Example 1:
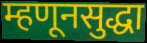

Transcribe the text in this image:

म्हणूनसुद्धा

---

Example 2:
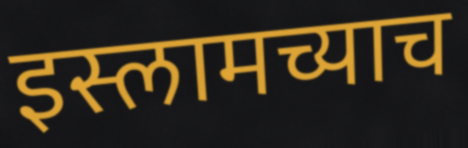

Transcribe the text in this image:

इस्लामच्याच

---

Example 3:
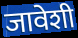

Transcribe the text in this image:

जावेशी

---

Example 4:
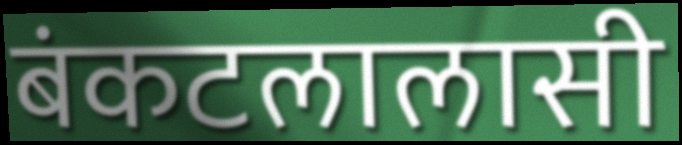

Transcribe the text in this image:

बंकटलालासी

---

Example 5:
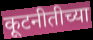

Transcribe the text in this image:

कूटनीतीच्या